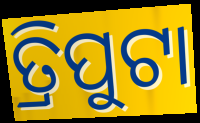
ତ୍ରିପୁଟା